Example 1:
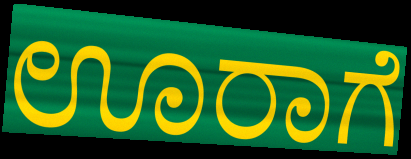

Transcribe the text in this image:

ಊರಾಗೆ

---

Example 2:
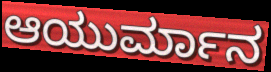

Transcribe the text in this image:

ಆಯುರ್ಮಾನ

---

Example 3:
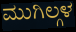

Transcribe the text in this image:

ಮುಗಿಲ್ಗಳ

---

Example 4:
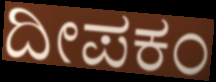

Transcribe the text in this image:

ದೀಪಕಂ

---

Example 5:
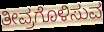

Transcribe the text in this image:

ತೀವ್ರಗೊಳಿಸುವ